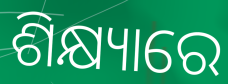
ଶିକ୍ଷ୍ୟାରେ